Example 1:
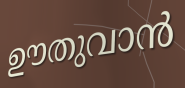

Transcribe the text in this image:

ഊതുവാൻ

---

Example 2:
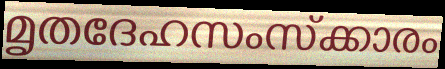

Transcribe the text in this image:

മൃതദേഹസംസ്‌ക്കാരം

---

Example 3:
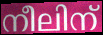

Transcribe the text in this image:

നീലിന്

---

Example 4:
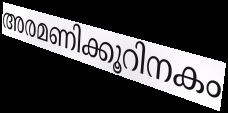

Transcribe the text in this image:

അരമണിക്കൂറിനകം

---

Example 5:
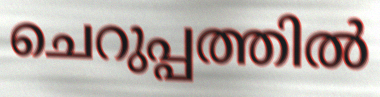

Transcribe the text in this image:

ചെറുപ്പത്തിൽ